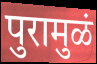
पुरामुळं